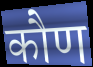
कौण